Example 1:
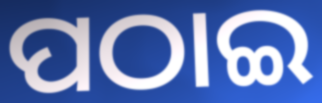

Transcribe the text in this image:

ପଠାଇ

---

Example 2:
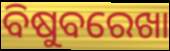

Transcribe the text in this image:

ବିଷୁବରେଖା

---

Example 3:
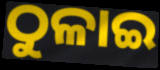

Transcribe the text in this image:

ଠୁଳାଇ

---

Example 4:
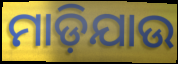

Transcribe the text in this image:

ମାଡ଼ିଯାଉ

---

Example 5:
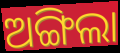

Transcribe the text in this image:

ଅଙ୍ଗିଲା